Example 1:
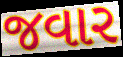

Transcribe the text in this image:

જવાર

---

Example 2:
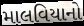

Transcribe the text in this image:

માલવિયાનો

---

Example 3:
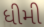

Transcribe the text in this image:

ધીમી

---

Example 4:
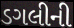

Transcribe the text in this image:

ડગલીની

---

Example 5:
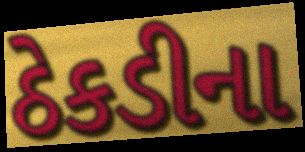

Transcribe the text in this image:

ઠેકડીના